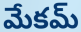
మేకమ్